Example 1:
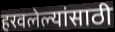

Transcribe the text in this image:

हरवलेल्यांसाठी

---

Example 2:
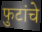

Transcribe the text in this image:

फुटांचे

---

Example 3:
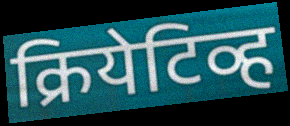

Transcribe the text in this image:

क्रियेटिव्ह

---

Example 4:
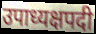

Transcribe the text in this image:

उपाध्यक्षपदी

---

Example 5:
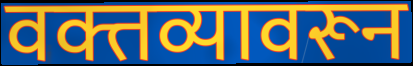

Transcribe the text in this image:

वक्तव्यावरून